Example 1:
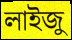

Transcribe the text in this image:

লাইজু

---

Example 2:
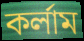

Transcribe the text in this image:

কর্লাম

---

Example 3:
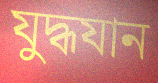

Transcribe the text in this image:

যুদ্ধযান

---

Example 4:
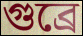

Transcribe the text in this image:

গুব্রে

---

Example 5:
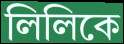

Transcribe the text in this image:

লিলিকে